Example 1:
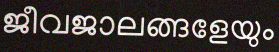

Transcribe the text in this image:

ജീവജാലങ്ങളേയും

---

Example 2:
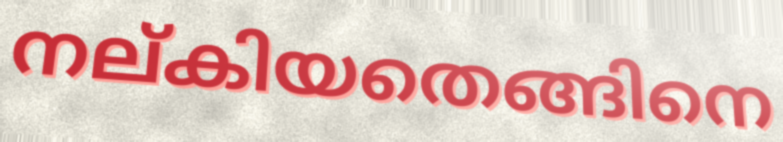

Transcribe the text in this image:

നല്കിയതെങ്ങിനെ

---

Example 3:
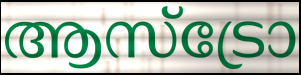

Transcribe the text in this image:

ആസ്ട്രോ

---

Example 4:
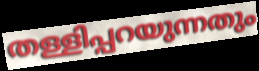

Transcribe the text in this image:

തള്ളിപ്പറയുന്നതും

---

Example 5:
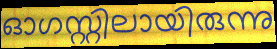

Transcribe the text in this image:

ഓഗസ്റ്റിലായിരുന്നു